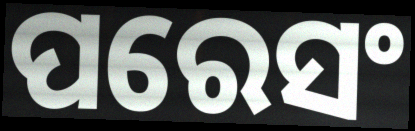
ପରେସଂ